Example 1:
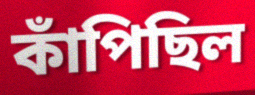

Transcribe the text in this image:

কাঁপিছিল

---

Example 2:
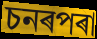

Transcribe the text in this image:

চনৰপৰা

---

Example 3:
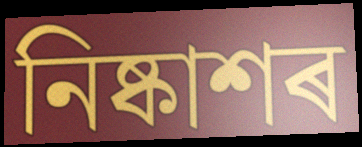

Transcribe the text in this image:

নিষ্কাশৰ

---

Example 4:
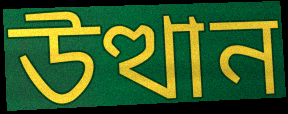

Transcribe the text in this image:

উত্থান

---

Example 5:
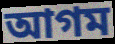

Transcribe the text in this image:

আগম